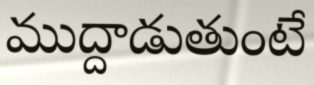
ముద్దాడుతుంటే